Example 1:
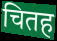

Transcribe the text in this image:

चितह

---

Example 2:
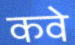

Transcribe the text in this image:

कवे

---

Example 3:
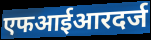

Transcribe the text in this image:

एफआईआरदर्ज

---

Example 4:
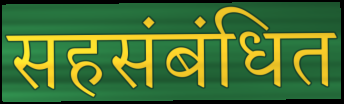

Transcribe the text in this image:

सहसंबंधित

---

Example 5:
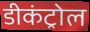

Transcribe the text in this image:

डीकंट्रोल